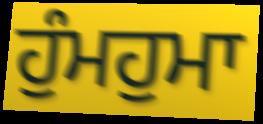
ਹੁੰਮਹੁਮਾ